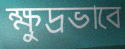
ক্ষুদ্রভাবে